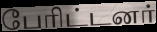
பேரிட்டனர்